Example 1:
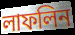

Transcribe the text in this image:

লাফলিন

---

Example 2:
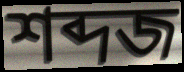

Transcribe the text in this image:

শব্দজ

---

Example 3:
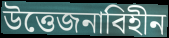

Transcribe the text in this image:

উত্তেজনাবিহীন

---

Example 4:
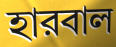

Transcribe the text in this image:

হারবাল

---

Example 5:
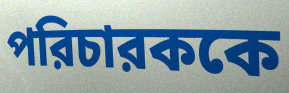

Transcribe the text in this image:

পরিচারককে